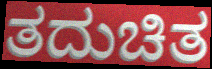
ತದುಚಿತ